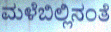
ಮಳೆಬಿಲ್ಲಿನಂತೆ